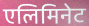
एलिमिनेट